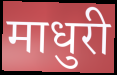
माधुरी